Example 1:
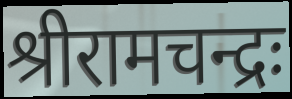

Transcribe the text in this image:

श्रीरामचन्द्रः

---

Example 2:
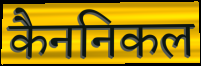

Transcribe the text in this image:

कैननिकल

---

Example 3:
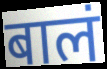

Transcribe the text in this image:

बालं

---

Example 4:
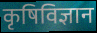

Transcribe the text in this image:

कृषिविज्ञान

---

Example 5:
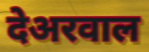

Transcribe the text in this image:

देअरवाल